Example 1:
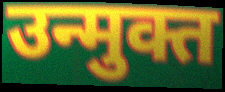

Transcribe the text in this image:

उन्मुक्त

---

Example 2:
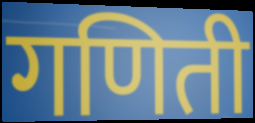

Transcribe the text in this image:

गणिती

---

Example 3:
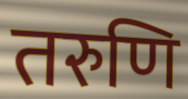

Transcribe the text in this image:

तरुणि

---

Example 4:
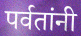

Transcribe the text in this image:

पर्वतांनी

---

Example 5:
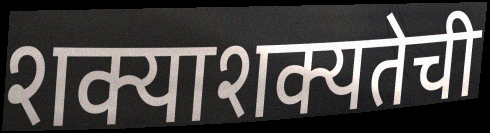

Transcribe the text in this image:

शक्याशक्यतेची